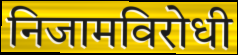
निजामविरोधी